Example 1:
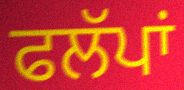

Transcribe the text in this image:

ਫਲੱਪਾਂ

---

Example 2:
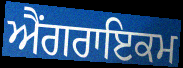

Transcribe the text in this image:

ਐਂਗਰਾਇਕਮ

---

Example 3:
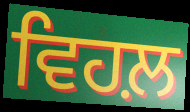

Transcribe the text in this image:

ਵਿਹਲ਼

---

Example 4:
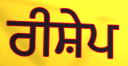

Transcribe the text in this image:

ਰੀਸ਼ੇਪ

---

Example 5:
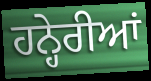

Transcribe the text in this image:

ਹਨ੍ਹੇਰੀਆਂ